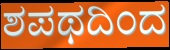
ಶಪಥದಿಂದ